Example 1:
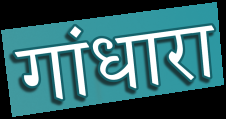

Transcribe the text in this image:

गांधारा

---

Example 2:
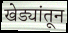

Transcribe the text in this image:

खेड्यांतून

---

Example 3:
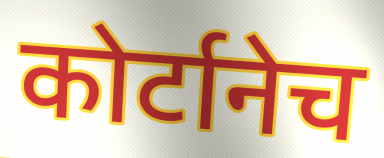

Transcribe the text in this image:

कोर्टानेच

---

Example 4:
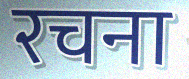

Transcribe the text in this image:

रचना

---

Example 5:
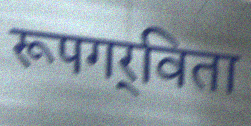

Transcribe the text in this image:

रूपगर्विता